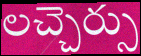
లచ్చెర్సు